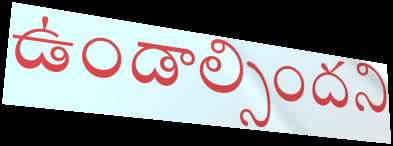
ఉండాల్సిందని